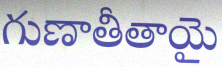
గుణాతీతాయై